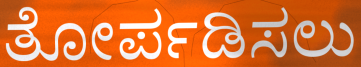
ತೋರ್ಪಡಿಸಲು